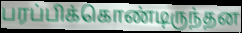
பரப்பிக்கொண்டிருந்தன